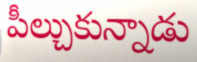
పీల్చుకున్నాడు